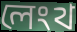
লেংথ